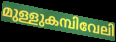
മുള്ളുകമ്പിവേലി